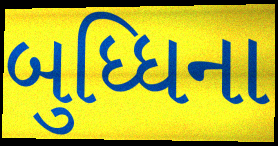
બુધ્ધિના